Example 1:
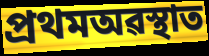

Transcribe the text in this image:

প্ৰথমঅৱস্থাত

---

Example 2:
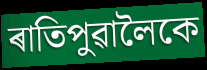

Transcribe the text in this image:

ৰাতিপুৱালৈকে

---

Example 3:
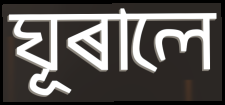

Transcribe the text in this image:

ঘূৰালে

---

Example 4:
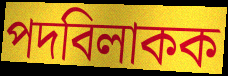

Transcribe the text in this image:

পদবিলাকক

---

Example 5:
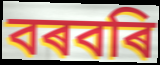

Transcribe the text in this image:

বৰবৰি